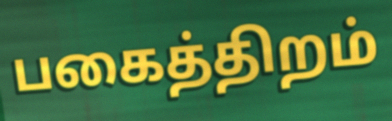
பகைத்திறம்